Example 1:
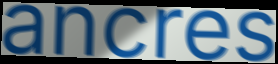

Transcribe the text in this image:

ancres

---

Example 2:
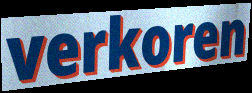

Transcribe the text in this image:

verkoren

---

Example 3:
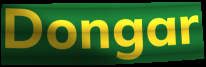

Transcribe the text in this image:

Dongar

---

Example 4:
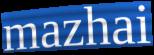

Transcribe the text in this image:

mazhai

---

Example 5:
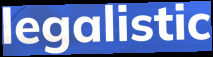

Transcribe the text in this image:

legalistic